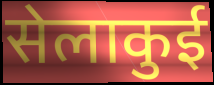
सेलाकुई